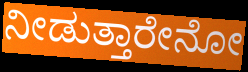
ನೀಡುತ್ತಾರೇನೋ